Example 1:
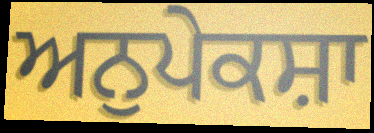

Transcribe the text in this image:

ਅਨੁਪੇਕਸ਼ਾ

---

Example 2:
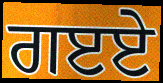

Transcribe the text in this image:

ਗੲਏ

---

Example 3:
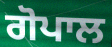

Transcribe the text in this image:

ਗੋਪਾਲ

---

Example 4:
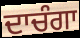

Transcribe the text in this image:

ਦਾਚੰਗਾ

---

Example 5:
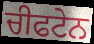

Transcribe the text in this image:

ਚੀਫਟੇਨ